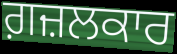
ਗ਼ਜ਼ਲਕਾਰ